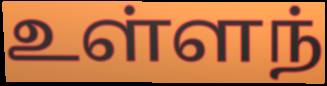
உள்ளந்